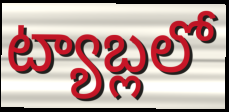
ట్యాబ్లలో